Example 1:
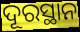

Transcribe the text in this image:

ଦୂରସ୍ଥାନ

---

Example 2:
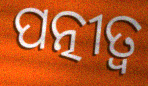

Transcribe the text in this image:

ପତ୍ନୀତ୍ୱ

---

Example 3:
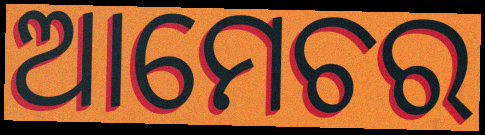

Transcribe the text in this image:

ଆମେଚର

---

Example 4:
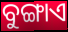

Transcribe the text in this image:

ବୁଙ୍ଗାଏ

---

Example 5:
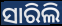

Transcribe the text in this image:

ସାରିଲି